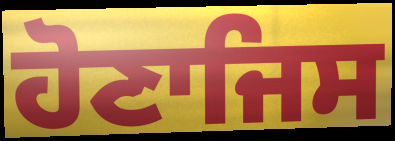
ਹੋਣਾਜਿਸ